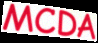
MCDA